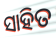
ସାହିତ